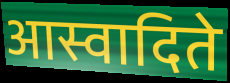
आस्वादिते